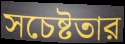
সচেষ্টতার